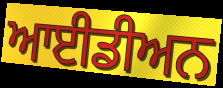
ਆਈਡੀਅਨ